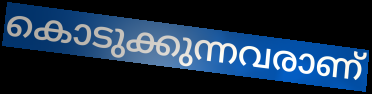
കൊടുക്കുന്നവരാണ്